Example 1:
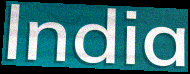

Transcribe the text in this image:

lndia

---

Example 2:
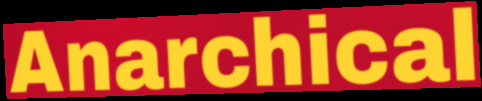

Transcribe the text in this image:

Anarchical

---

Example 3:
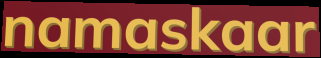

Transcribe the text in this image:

namaskaar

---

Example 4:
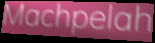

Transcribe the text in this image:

Machpelah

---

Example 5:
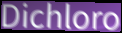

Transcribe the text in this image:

Dichloro